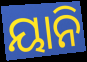
ୟାନି